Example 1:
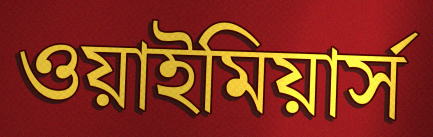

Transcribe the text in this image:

ওয়াইমিয়ার্স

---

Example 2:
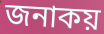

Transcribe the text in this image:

জনাকয়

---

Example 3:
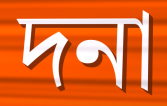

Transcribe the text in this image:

দনা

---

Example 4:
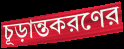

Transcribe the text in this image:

চূড়ান্তকরণের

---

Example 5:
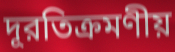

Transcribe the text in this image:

দূরতিক্রমণীয়